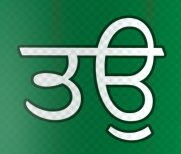
ਤਉ